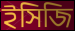
ইসিজি